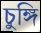
চুঙ্গি